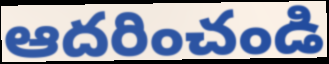
ఆదరించండి